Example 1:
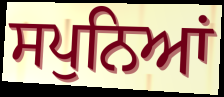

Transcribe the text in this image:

ਸਪੁਨਿਆਂ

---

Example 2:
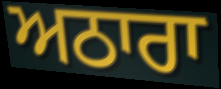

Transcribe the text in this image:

ਅਠਾਰਾ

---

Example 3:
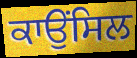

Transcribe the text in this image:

ਕਾਉਂਸਿਲ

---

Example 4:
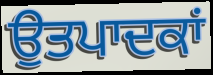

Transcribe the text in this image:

ਉਤਪਾਦਕਾਂ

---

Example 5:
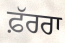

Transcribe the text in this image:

ਫ਼ੱਰਰਾ